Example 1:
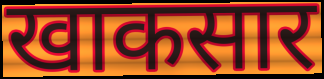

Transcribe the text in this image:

खाकसार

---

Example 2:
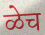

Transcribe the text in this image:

ळेच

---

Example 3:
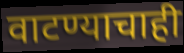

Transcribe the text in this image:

वाटण्याचाही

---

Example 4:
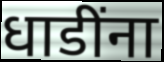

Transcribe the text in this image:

धाडींना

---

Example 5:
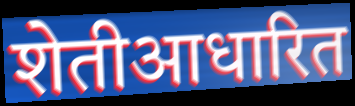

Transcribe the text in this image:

शेतीआधारित